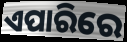
ଏପାରିରେ